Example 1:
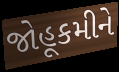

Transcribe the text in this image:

જોહૂકમીને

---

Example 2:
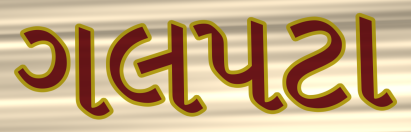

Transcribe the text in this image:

ગલપટા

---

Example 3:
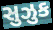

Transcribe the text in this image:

સુઝુક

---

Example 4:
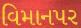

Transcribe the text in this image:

વિમાનપર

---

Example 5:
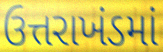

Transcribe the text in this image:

ઉત્તરાખંડમાં